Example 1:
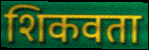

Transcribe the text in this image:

शिकवता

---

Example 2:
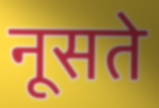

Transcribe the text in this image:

नूसते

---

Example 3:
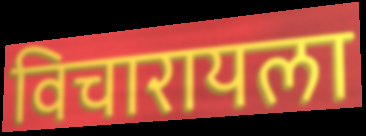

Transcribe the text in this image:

विचारायला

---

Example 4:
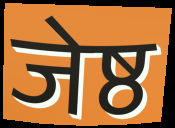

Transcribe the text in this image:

जेष्ठ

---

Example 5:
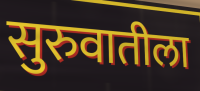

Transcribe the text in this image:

सुरुवातीला